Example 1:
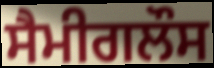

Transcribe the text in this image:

ਸੈਮੀਗਲੌਸ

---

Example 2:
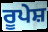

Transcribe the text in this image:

ਰੂਪੇਸ਼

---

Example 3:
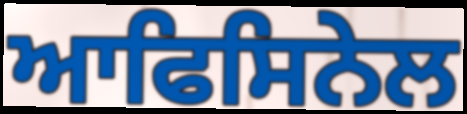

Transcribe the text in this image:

ਆਫਿਸਿਨੇਲ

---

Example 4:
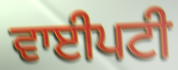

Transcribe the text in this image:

ਵਾਈਪਟੀ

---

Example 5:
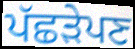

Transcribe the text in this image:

ਪੱਛੜੇਪਣ